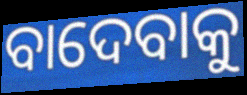
ବାଦେବାକୁ